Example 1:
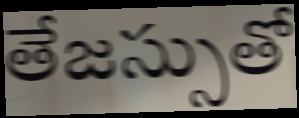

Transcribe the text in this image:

తేజస్సుతో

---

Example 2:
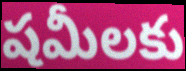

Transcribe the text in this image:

షమీలకు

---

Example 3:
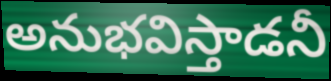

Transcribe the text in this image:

అనుభవిస్తాడనీ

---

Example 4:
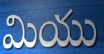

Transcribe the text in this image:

మియు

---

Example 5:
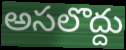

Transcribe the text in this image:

అసలొద్దు